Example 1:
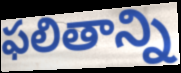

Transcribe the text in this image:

ఫలితాన్ని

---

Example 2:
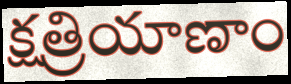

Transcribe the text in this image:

క్షత్రియాణాం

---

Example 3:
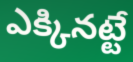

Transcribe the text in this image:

ఎక్కినట్టే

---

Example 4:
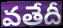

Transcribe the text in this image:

వతేదీ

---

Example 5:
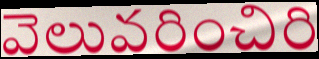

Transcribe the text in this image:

వెలువరించిరి